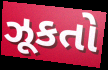
ઝૂકતો